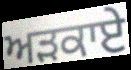
ਅੜਕਾਏ